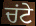
ਚਂਟੇ